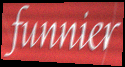
funnier